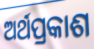
ଅର୍ଥପ୍ରକାଶ